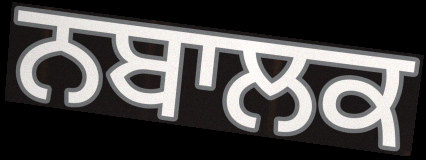
ਨਬਾਲਕ